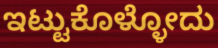
ಇಟ್ಟುಕೊಳ್ಳೋದು